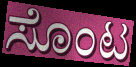
ಸೊಂಟ